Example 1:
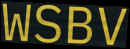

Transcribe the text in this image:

WSBV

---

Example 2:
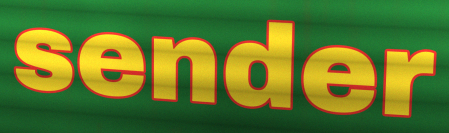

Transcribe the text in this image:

sender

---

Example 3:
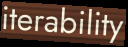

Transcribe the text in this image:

iterability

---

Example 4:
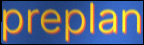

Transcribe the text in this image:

preplan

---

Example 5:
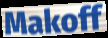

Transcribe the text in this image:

Makoff